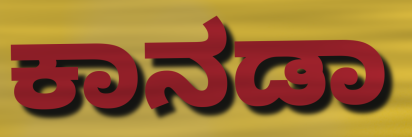
ಕಾನಡಾ